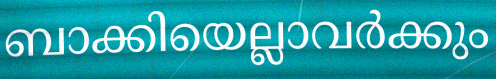
ബാക്കിയെല്ലാവർക്കും